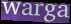
warga